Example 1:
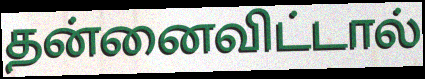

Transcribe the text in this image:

தன்னைவிட்டால்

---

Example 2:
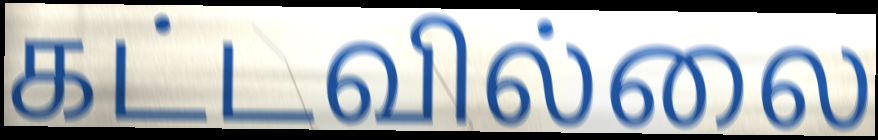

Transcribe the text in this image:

கட்டவில்லை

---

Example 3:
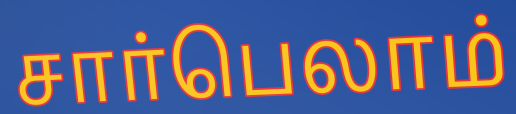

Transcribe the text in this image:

சார்பெலாம்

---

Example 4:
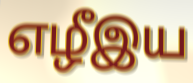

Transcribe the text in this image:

எழீஇய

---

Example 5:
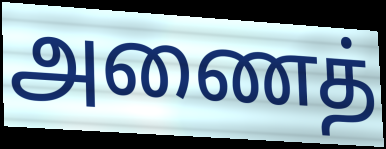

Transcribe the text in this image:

அணைத்